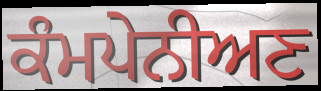
ਕੰਮਪੇਨੀਅਣ